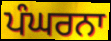
ਪੰਘਰਨਾ